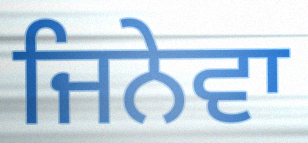
ਜਿਨੇਵਾ